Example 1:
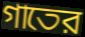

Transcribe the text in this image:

গাতের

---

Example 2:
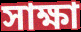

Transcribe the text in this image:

সাক্ষা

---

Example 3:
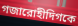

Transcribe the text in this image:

গজারোহীদিগকে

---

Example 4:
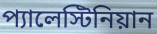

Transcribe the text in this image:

প্যালেস্টিনিয়ান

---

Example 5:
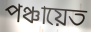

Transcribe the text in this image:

পঞ্চায়েত